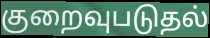
குறைவுபடுதல்